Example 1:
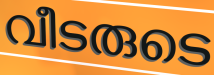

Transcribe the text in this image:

വീടരുടെ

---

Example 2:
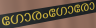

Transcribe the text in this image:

ഗോരംഗോരോ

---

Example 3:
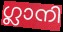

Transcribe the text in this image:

ഗ്ലാനി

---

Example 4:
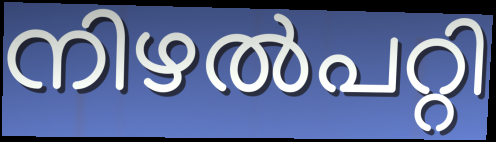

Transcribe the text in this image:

നിഴൽപറ്റി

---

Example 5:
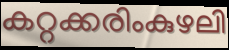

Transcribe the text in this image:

കറ്റക്കരിംകുഴലി